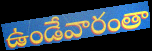
ఉండేవారంతా